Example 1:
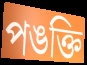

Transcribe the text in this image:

পঙক্তি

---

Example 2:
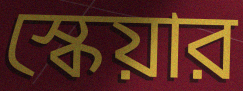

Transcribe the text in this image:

স্কেয়ার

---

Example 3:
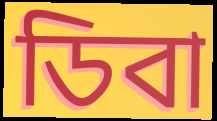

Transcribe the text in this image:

ডিবা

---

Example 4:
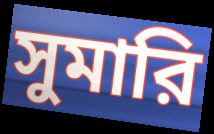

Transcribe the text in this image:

সুমারি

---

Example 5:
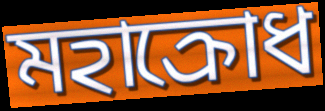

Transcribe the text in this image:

মহাক্রোধ